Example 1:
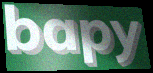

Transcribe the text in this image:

bapy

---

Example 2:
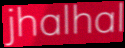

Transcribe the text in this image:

jhalhal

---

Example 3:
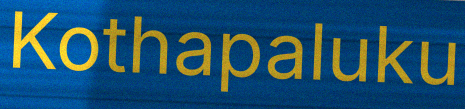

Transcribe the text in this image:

Kothapaluku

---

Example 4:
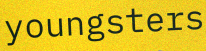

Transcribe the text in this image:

youngsters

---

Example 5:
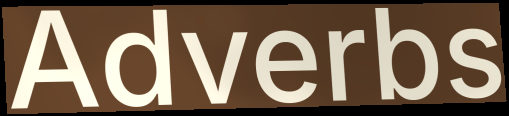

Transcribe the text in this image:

Adverbs